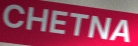
CHETNA